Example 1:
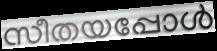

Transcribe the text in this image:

സീതയപ്പോൾ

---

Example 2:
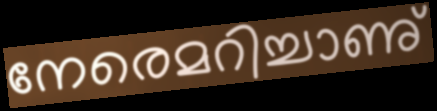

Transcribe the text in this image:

നേരെമറിച്ചാണു്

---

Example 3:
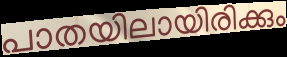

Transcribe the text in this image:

പാതയിലായിരിക്കും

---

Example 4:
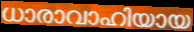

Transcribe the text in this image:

ധാരാവാഹിയായ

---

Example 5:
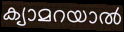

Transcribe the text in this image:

ക്യാമറയാൽ